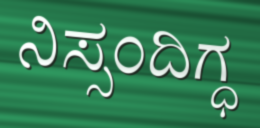
ನಿಸ್ಸಂದಿಗ್ಧ